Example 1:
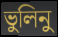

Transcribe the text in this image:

ভুলিনু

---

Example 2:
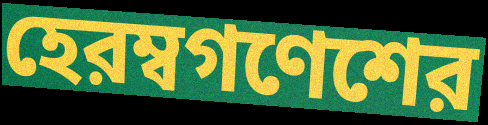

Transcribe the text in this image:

হেরম্বগণেশের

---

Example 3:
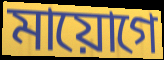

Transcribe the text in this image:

মায়োগে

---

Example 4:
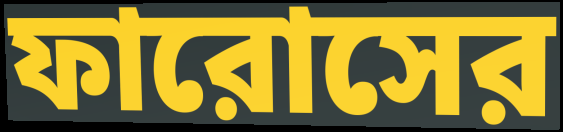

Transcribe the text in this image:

ফারোসের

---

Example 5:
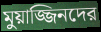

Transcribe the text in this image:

মুয়াজ্জিনদের